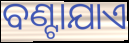
ବଣ୍ଟାଯାଏ